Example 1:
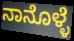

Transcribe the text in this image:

ನಾನೊಳ್ಳೆ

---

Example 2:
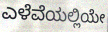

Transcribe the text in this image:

ಎಳೆವೆಯಲ್ಲಿಯೇ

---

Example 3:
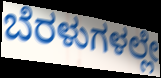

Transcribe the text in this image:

ಬೆರಳುಗಳಲ್ಲೇ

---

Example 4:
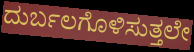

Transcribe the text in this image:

ದುರ್ಬಲಗೊಳಿಸುತ್ತಲೇ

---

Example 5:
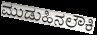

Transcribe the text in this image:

ಮುಡುಹಿನಲೌಕಿ